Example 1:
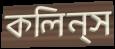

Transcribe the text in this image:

কলিন্‌স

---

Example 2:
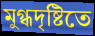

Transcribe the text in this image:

মুগ্ধদৃষ্টিতে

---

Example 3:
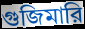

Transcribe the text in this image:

গুজিমারি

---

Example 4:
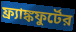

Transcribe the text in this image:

ফ্র্যাঙ্কফুর্টের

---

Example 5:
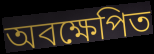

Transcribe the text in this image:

অবক্ষেপিত